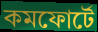
কমফোর্টে